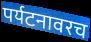
पर्यटनावरच